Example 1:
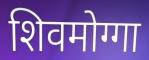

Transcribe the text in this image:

शिवमोग्गा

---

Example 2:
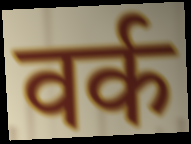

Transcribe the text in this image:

वर्क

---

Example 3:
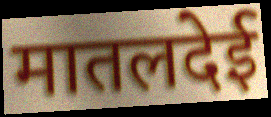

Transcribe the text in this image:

मातलदेई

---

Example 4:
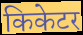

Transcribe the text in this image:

किकेटर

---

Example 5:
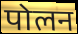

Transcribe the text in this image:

पोलन